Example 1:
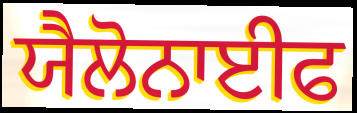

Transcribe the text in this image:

ਯੈਲੋਨਾਈਫ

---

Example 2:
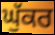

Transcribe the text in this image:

ਘੁੱਕਰ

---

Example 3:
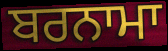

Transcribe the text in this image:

ਬਰਨਾਮਾ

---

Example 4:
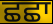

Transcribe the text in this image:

ਛਛਾ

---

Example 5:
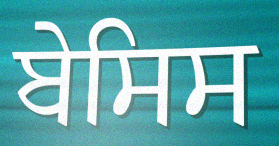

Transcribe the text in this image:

ਬੇਸਿਸ